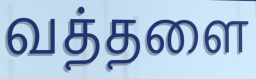
வத்தளை